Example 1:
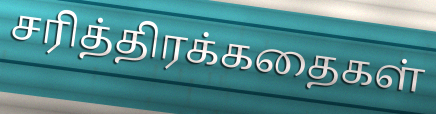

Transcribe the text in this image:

சரித்திரக்கதைகள்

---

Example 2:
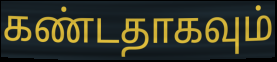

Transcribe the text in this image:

கண்டதாகவும்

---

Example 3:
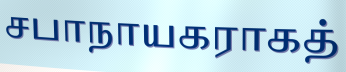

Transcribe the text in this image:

சபாநாயகராகத்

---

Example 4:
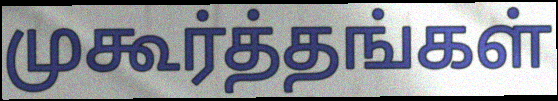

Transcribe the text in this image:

முகூர்த்தங்கள்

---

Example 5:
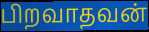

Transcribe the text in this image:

பிறவாதவன்